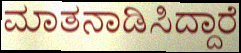
ಮಾತನಾಡಿಸಿದ್ದಾರೆ